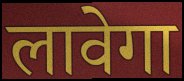
लावेगा